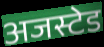
अजस्टेड